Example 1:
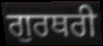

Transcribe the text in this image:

ਗੁਰਥਰੀ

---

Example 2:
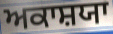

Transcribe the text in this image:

ਅਕਾਸ਼ਯਾ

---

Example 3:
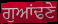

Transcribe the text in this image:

ਗੁਆਂਢਣੇ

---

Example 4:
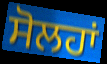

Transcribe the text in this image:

ਸੋਲਹਾਂ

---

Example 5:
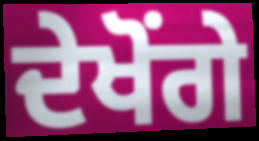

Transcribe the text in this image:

ਦੇਖੋਂਗੇ